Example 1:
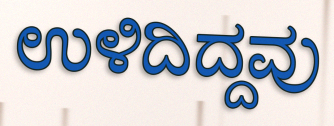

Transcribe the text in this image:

ಉಳಿದಿದ್ದವು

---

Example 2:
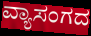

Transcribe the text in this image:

ವ್ಯಾಸಂಗದ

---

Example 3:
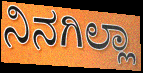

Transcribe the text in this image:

ನಿನಗಿಲ್ಲಾ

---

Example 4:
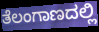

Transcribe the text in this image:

ತೆಲಂಗಾಣದಲ್ಲಿ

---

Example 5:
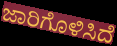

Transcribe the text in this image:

ಜಾರಿಗೊಳಿಸಿದೆ